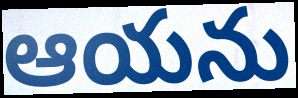
ఆయను